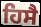
ਹਿਸੈ